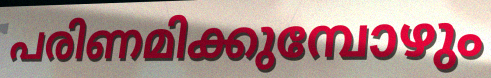
പരിണമിക്കുമ്പോഴും